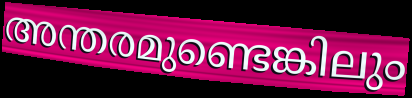
അന്തരമുണ്ടെങ്കിലും